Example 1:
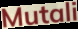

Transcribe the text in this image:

Mutali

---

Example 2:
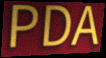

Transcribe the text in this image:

PDA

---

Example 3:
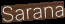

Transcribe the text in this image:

Sarana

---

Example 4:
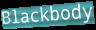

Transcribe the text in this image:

Blackbody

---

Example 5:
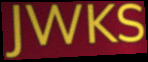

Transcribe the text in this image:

JWKS